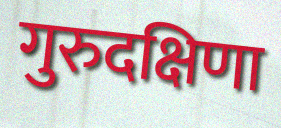
गुरुदक्षिणा